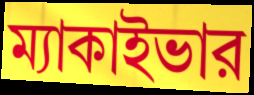
ম্যাকাইভার